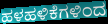
ಹಳಹಳಿಕೆಗಳಿಂದ